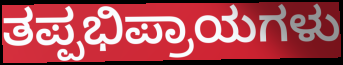
ತಪ್ಪಭಿಪ್ರಾಯಗಳು